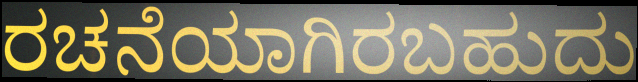
ರಚನೆಯಾಗಿರಬಹುದು